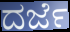
ದರ್ಜೆ